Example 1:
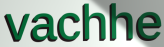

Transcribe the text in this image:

vachhe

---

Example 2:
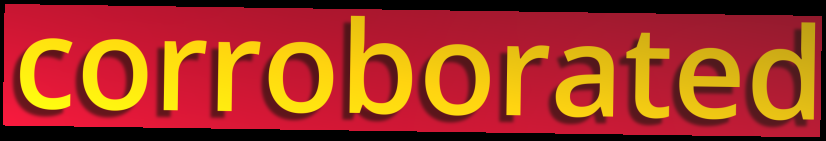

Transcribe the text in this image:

corroborated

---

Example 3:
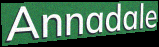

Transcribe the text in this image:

Annadale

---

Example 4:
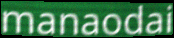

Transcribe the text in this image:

manaodai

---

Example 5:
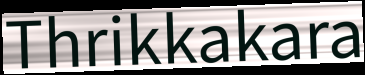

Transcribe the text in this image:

Thrikkakara